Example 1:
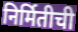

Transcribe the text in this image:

निर्मितीची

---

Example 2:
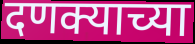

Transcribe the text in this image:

दणक्याच्या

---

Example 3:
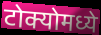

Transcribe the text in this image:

टोक्योमध्ये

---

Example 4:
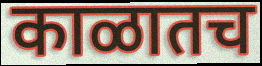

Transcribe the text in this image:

काळातच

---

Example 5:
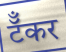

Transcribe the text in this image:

टॅँकर